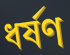
ধৰ্ষণ